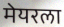
मेयरला